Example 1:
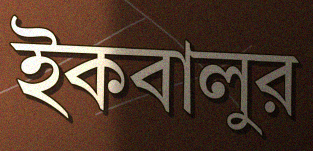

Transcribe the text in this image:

ইকবালুর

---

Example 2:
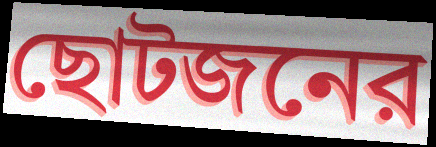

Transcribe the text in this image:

ছোটজনের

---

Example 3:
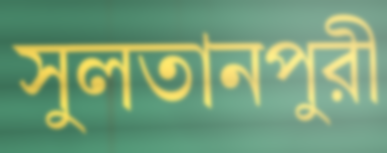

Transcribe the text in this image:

সুলতানপুরী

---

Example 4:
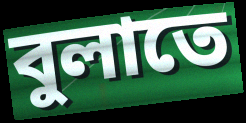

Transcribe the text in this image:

বুলাতে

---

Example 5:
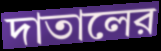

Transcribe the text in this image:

দাতালের